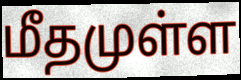
மீதமுள்ள